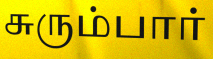
சுரும்பார்